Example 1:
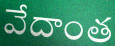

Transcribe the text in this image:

వేదాంత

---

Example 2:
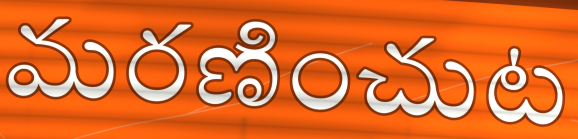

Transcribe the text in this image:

మరణించుట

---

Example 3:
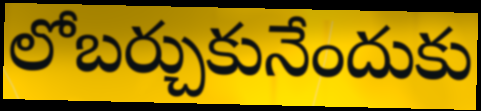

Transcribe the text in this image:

లోబర్చుకునేందుకు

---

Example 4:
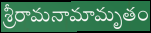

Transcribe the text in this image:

శ్రీరామనామామృతం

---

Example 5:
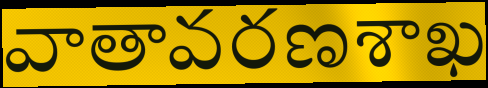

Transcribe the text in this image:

వాతావరణశాఖ